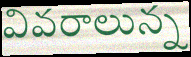
వివరాలున్న